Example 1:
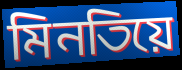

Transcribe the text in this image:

মিনতিয়ে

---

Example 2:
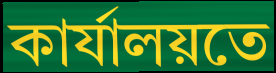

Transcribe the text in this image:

কাৰ্যালয়তে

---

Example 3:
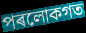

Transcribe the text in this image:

পৰলোকগত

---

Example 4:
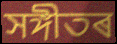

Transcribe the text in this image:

সঙ্গীতৰ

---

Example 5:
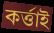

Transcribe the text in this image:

কৰ্ত্তাই